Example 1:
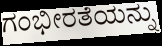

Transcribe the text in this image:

ಗಂಭೀರತೆಯನ್ನು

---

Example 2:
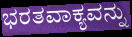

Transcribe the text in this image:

ಭರತವಾಕ್ಯವನ್ನು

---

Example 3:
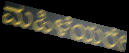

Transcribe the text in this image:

ಮಹಿಳೆಯರೇ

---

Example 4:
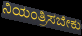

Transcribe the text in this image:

ನಿಯಂತ್ರಿಸಬೇಕು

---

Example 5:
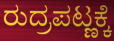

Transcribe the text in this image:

ರುದ್ರಪಟ್ಣಕ್ಕೆ